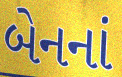
બેનનાં